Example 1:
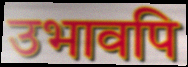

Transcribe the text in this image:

उभावपि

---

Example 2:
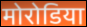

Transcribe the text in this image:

मोरोडिया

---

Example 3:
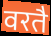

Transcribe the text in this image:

वरतै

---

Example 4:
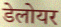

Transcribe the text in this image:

डेलोयर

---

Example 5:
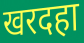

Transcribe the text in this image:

खरदहा